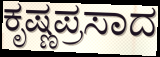
ಕೃಷ್ಣಪ್ರಸಾದ